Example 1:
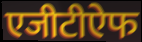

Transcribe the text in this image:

एजीटीऐफ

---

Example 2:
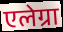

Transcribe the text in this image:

एलेग्रा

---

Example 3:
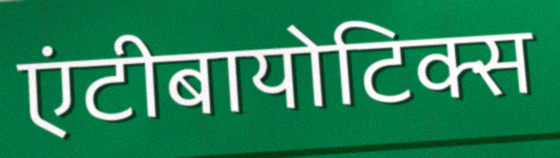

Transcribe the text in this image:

एंटीबायोटिक्स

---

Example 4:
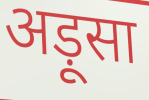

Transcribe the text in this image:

अड़ूसा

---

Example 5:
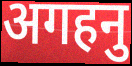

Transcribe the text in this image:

अगहनु